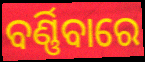
ବର୍ଣ୍ଣିବାରେ